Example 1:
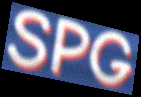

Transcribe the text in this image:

SPG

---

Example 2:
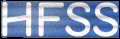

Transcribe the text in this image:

HFSS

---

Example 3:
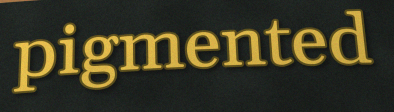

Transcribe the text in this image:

pigmented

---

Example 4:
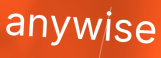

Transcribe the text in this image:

anywise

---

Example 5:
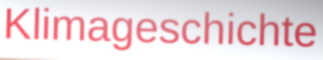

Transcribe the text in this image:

Klimageschichte